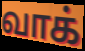
வாக்